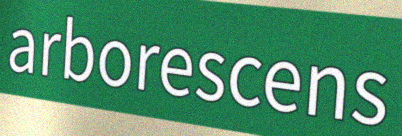
arborescens